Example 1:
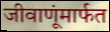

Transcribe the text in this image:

जीवाणूंमार्फत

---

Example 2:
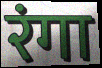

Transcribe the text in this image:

रंगा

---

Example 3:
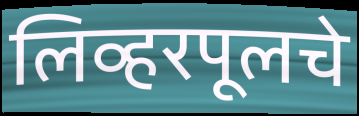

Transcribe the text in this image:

लिव्हरपूलचे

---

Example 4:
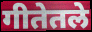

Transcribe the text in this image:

गीतेतले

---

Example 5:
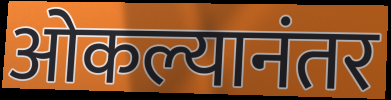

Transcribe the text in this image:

ओकल्यानंतर